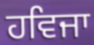
ਹਵਿਜਾ